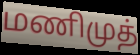
மணிமுத்